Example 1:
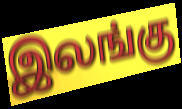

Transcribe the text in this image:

இலங்கு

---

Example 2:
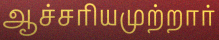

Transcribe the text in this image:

ஆச்சரியமுற்றார்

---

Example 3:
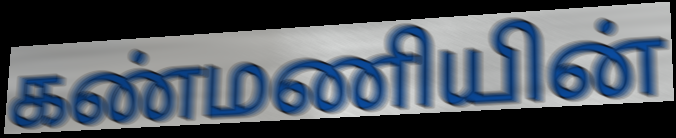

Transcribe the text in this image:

கண்மணியின்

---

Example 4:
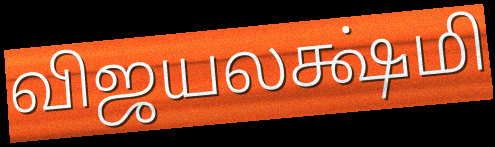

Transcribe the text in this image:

விஜயலக்ஷ்மி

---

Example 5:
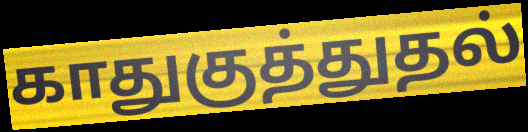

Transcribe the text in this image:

காதுகுத்துதல்